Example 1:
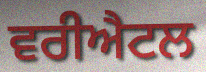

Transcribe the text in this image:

ਵਰੀਐਟਲ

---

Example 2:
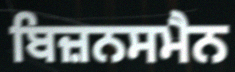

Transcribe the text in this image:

ਬਿਜ਼ਨਸਮੈਨ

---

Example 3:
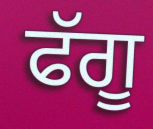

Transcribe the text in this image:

ਫੱਗੂ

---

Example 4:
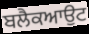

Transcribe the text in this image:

ਬਲੈਕਆਉਟ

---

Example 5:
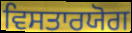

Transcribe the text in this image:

ਵਿਸਤਾਰਯੋਗ